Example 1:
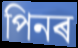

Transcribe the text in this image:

পিনৰ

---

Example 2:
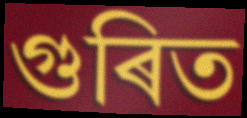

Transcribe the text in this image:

গুৰিত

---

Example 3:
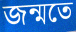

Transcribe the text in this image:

জন্মতে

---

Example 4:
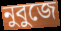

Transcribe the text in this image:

নুবুজে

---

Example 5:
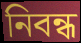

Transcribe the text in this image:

নিবন্ধ